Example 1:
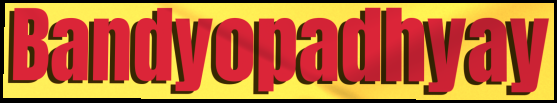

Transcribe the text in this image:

Bandyopadhyay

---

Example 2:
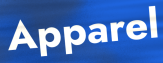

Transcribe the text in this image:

Apparel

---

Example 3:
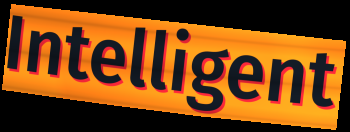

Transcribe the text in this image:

Intelligent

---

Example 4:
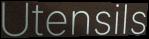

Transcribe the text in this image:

Utensils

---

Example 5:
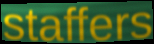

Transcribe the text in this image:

staffers